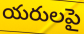
యరులపై